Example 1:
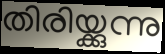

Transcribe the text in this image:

തിരിയ്ക്കുന്നു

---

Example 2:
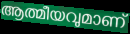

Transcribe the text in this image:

ആത്മീയവുമാണ്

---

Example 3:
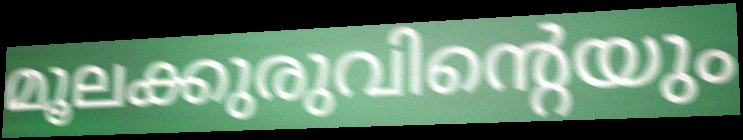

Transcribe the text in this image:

മൂലക്കുരുവിന്റെയും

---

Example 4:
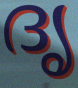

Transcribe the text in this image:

ദൃ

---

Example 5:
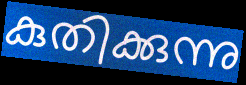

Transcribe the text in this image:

കുതിക്കുന്നു